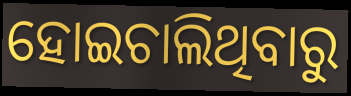
ହୋଇଚାଲିଥିବାରୁ